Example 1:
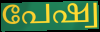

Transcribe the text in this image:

പേഷ്വ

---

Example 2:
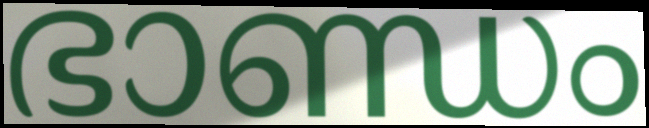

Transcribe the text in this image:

ഭാണ്ഡം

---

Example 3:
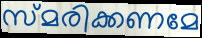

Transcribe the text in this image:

സ്മരിക്കണമേ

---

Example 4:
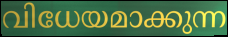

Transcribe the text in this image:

വിധേയമാക്കുന്ന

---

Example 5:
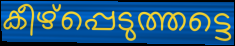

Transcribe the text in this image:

കീഴ്പ്പെടുത്തട്ടെ